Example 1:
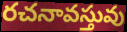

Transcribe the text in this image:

రచనావస్తువు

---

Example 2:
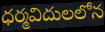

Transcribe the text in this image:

ధర్మవిదులలోన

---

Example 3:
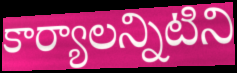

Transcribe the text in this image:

కార్యాలన్నిటిని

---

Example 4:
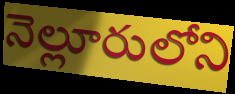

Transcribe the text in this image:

నెల్లూరులోని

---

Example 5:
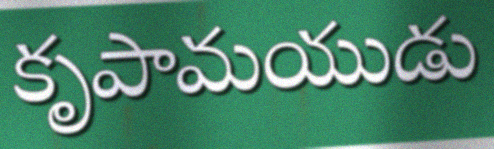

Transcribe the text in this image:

కృపామయుడు